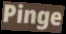
Pinge